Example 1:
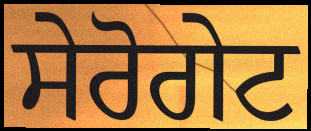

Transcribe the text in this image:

ਸੇਰੋਗੇਟ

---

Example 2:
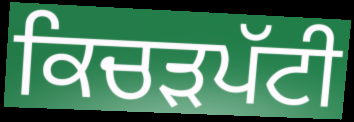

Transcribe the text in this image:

ਕਿਚੜਪੱਟੀ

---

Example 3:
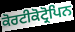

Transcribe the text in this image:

ਕੋਰਟੀਕੋਟ੍ਰੋਪਿਨ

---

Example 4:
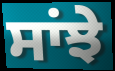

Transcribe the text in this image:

ਸਾਂਝੇ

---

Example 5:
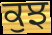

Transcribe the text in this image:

ਕੁਝ